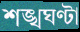
শঙ্খঘণ্টা